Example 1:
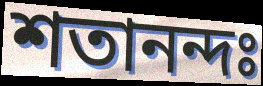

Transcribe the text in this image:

শতানন্দঃ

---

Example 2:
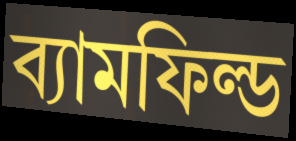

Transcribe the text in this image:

ব্যামফিল্ড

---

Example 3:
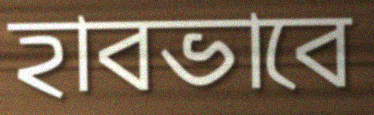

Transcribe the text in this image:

হাবভাবে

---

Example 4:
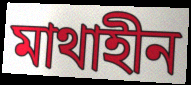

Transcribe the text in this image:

মাথাহীন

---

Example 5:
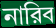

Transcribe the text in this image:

নারিব